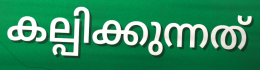
കല്പിക്കുന്നത്